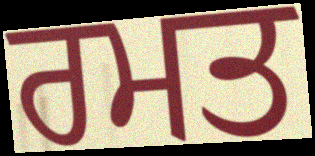
ਰਮਤ